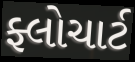
ફ્લોચાર્ટ